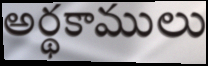
అర్థకాములు